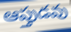
ఆప్తుడవు